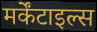
मर्केंटाइल्स